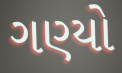
ગણ્યો